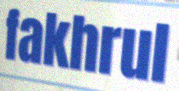
fakhrul